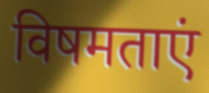
विषमताएं